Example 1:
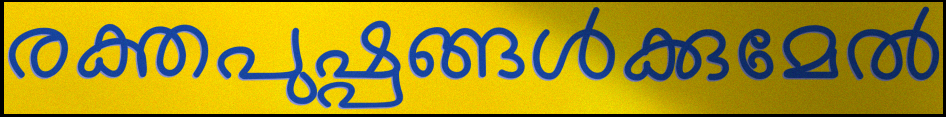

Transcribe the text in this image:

രക്തപുഷ്പങ്ങൾക്കുമേൽ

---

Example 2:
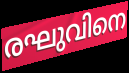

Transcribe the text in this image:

രഘുവിനെ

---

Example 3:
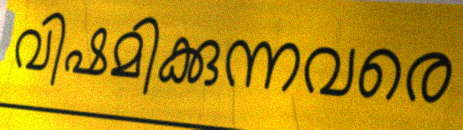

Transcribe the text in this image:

വിഷമിക്കുന്നവരെ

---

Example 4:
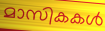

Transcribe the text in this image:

മാസികകൾ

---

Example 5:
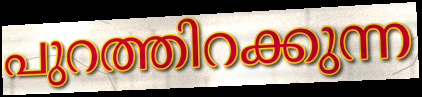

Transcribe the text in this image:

പുറത്തിറക്കുന്ന